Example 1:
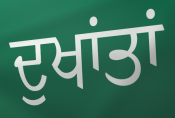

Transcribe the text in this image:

ਦੁਖਾਂਤਾਂ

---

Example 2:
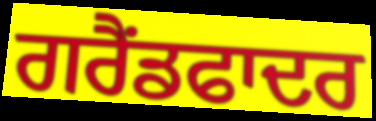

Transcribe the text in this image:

ਗਰੈਂਡਫਾਦਰ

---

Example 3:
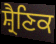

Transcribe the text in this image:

ਸ਼੍ਰੈਣਿਕ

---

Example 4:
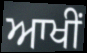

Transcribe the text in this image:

ਆਖੀਂ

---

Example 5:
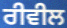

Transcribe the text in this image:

ਰੀਵੀਲ